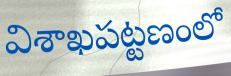
విశాఖపట్టణంలో